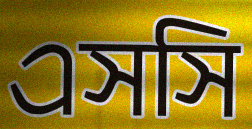
এসসি